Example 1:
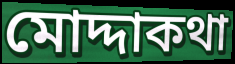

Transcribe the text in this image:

মোদ্দাকথা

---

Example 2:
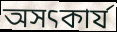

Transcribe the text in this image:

অসৎকার্য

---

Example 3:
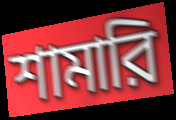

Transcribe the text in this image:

শামারি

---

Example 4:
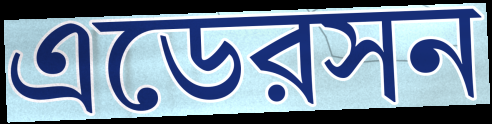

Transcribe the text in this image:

এডেরসন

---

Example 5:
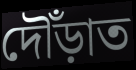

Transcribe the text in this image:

দৌঁড়াত